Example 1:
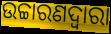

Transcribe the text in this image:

ଉଚ୍ଚାରଣଦ୍ଵାରା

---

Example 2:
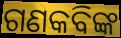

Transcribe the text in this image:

ଗଣକବିଙ୍କ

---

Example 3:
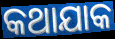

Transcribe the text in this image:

କଥାଯାକ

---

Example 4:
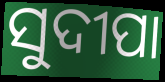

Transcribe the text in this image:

ସୁଦୀପା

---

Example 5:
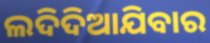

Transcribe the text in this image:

ଲଦିଦିଆଯିବାର